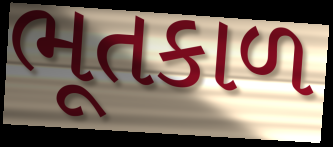
ભૂતકાળ